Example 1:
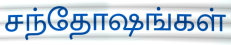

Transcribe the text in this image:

சந்தோஷங்கள்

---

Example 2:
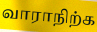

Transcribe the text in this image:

வாராநிற்க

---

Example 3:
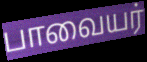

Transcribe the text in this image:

பாவையர்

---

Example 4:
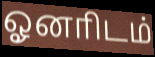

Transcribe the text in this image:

ஓனரிடம்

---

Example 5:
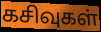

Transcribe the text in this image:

கசிவுகள்